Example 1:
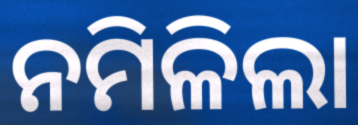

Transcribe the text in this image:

ନମିଳିଲା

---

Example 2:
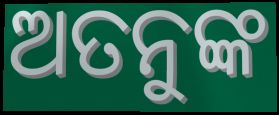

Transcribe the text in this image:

ଅତନୁଙ୍କ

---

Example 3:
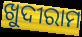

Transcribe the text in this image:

ଖୁଦୀରାମ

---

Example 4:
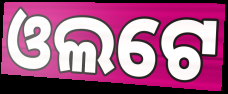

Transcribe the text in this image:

ଓଲଟେ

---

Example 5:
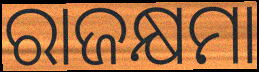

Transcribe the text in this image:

ରାଜକ୍ଷମା